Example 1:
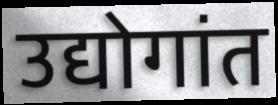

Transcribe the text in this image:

उद्योगांत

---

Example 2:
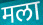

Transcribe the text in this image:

मला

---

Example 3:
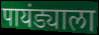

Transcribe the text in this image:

पायंड्याला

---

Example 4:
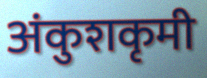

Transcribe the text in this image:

अंकुशकृमी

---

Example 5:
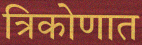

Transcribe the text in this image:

त्रिकोणात